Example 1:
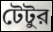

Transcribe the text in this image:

টেটুর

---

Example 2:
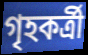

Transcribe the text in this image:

গৃহকর্ত্রী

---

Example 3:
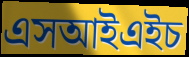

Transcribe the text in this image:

এসআইএইচ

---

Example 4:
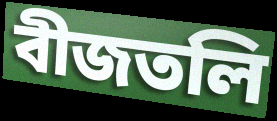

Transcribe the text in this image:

বীজতলি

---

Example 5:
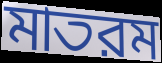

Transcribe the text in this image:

মাতরম